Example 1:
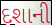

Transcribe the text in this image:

દશાની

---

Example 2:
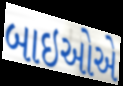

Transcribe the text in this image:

બાઇઓએ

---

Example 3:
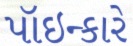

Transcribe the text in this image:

પૉઇન્કારે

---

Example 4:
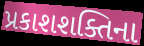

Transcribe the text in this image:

પ્રકાશશક્તિના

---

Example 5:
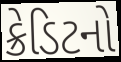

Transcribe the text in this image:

ક્રેડિટનો